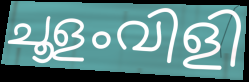
ചൂളംവിളി